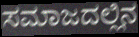
ಸಮಾಜದಲ್ಲಿನ